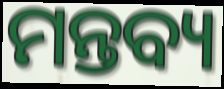
ମନ୍ତବ୍ୟ